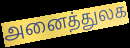
அனைத்துலக